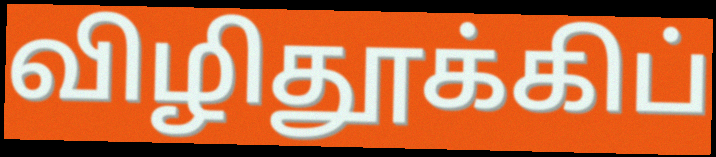
விழிதூக்கிப்